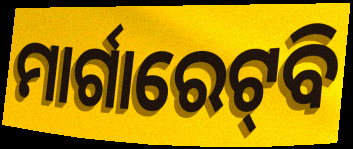
ମାର୍ଗାରେଟ୍‌ବି